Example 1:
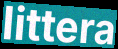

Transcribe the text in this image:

littera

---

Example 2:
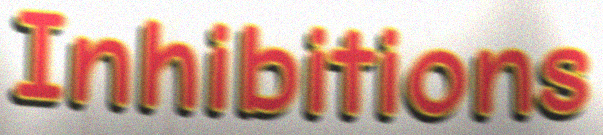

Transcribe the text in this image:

Inhibitions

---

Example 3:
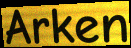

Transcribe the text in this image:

Arken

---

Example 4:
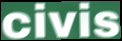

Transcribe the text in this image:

civis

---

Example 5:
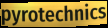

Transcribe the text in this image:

pyrotechnics